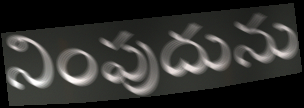
నింపుదును